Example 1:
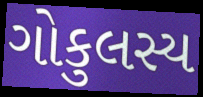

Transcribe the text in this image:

ગોકુલસ્ય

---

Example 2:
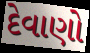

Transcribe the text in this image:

દેવાણો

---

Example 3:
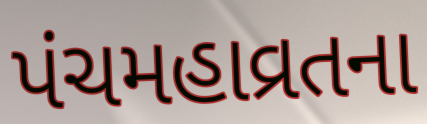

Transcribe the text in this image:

પંચમહાવ્રતના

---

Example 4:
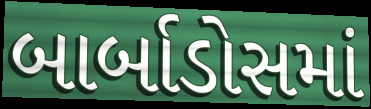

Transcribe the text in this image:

બાર્બાડોસમાં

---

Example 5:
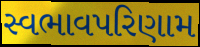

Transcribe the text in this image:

સ્વભાવપરિણામ